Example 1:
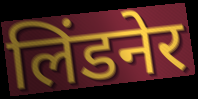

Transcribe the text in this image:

लिंडनेर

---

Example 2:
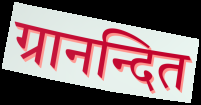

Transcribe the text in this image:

ग्रानन्दित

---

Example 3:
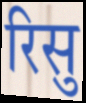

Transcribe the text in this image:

रिसु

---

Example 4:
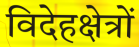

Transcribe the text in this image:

विदेहक्षेत्रों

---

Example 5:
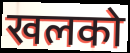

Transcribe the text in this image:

खलको